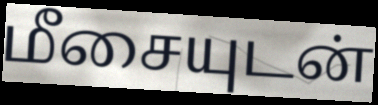
மீசையுடன்